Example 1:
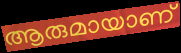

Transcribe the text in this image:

ആരുമായാണ്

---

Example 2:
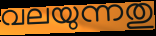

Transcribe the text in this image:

വലയുന്നതു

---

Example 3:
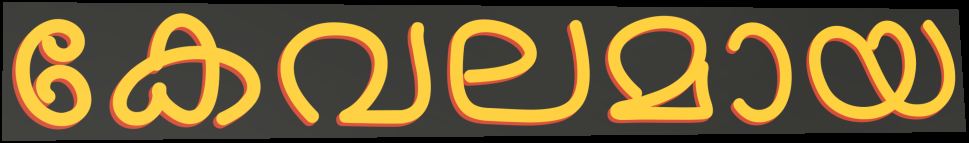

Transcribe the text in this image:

കേവലമായ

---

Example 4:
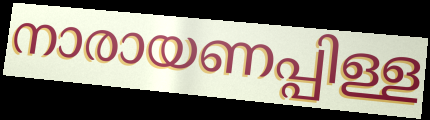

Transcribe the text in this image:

നാരായണപ്പിള്ള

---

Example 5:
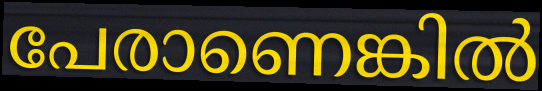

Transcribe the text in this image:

പേരാണെങ്കിൽ